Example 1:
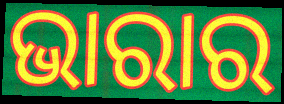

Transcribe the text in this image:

ଭାରାର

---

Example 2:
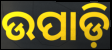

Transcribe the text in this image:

ଉପାଡ଼ି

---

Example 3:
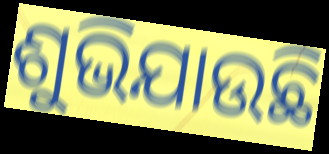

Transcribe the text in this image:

ଶୁଭିଯାଉଛି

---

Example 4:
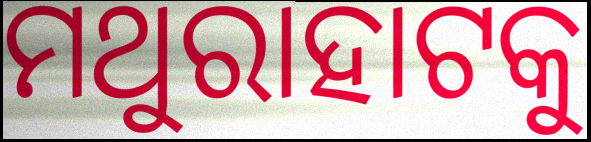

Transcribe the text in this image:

ମଥୁରାହାଟକୁ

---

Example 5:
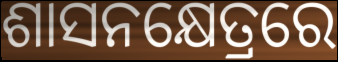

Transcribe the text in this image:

ଶାସନକ୍ଷେତ୍ରରେ